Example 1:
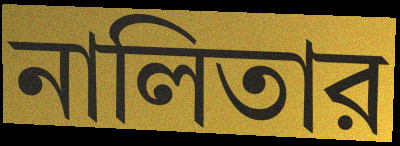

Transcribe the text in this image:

নালিতার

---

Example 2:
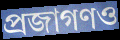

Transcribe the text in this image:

প্রজাগণও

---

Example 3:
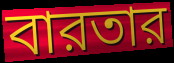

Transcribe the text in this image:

বারতার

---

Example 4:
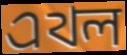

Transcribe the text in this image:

এথল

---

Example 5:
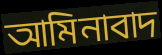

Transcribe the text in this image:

আমিনাবাদ